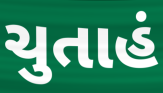
ચુતાહં